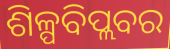
ଶିଳ୍ପବିପ୍ଲବର